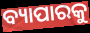
ବ୍ୟାପାରକୁ